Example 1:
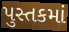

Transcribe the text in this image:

પુસ્તકમાં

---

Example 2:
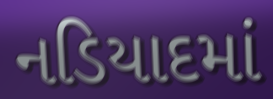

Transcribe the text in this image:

નડિયાદમાં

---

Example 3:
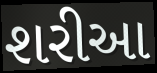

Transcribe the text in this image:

શરીઆ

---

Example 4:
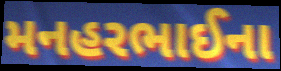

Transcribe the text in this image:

મનહરભાઈના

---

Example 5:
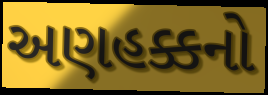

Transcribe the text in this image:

અણહક્કનો